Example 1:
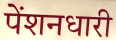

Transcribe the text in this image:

पेंशनधारी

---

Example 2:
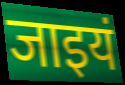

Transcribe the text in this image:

जाइयं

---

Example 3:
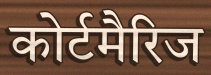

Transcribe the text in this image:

कोर्टमैरिज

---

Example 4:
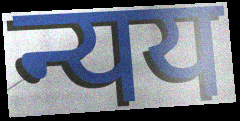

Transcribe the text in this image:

न्यय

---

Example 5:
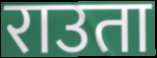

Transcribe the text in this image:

राउता